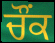
ਚੌਂਕ